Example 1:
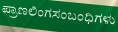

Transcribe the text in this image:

ಪ್ರಾಣಲಿಂಗಸಂಬಂಧಿಗಳು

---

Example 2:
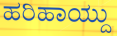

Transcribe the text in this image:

ಹರಿಹಾಯ್ದು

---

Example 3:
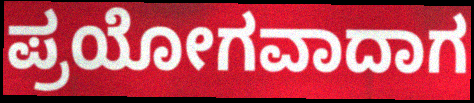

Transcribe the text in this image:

ಪ್ರಯೋಗವಾದಾಗ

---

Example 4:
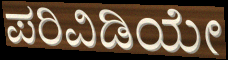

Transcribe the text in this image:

ಪರಿವಿಡಿಯೇ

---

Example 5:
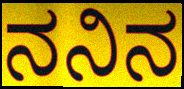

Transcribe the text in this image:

ನನಿನ